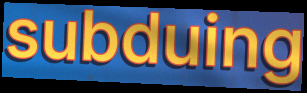
subduing